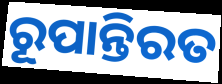
ରୂପାନ୍ତିରତ